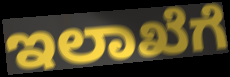
ಇಲಾಖೆಗೆ